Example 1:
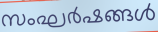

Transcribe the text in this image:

സംഘർഷങ്ങൾ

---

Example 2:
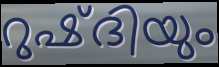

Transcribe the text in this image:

റുഷ്ദിയും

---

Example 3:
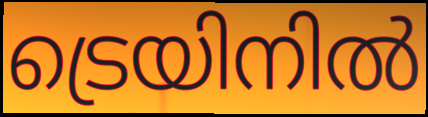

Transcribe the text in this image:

ട്രെയിനിൽ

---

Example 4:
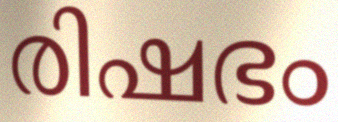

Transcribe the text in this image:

രിഷഭം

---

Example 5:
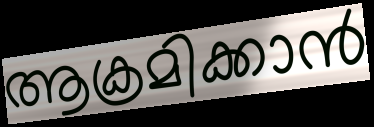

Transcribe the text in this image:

ആക്രമിക്കാൻ